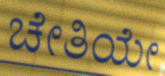
ಚೇತಿಯೇ